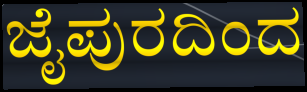
ಜೈಪುರದಿಂದ